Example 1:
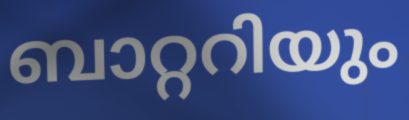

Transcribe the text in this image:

ബാറ്ററിയും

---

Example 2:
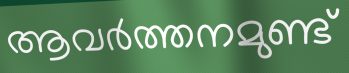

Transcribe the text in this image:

ആവർത്തനമുണ്ട്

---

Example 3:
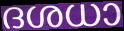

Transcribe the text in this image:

ദശധാ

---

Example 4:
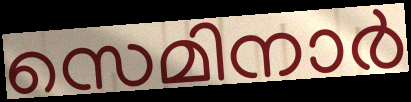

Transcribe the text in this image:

സെമിനാർ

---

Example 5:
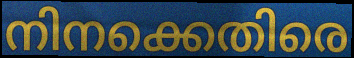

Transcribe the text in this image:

നിനക്കെതിരെ